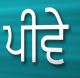
ਪੀਵੇ